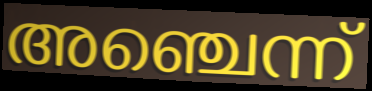
അഞ്ചെന്ന്